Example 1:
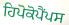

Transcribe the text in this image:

ਹਿਪੋਕੋਪੈਂਪਸ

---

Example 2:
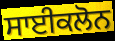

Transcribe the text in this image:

ਸਾਈਕਲੋਨ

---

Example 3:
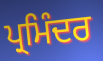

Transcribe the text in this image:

ਪ੍ਰਮਿੰਦਰ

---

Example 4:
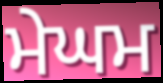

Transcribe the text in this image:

ਮੇਘਮ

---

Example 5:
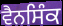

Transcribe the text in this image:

ਵੈਨਸਿੰਕ